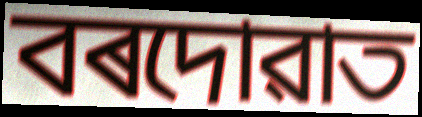
বৰদোৱাত